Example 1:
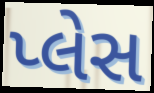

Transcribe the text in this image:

પ્લેસ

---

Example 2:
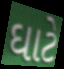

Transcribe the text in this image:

ઘાટે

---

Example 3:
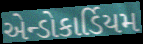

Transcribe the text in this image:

એન્ડોકાર્ડિયમ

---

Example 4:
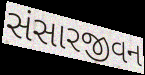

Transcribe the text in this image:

સંસારજીવન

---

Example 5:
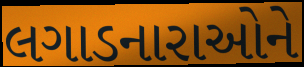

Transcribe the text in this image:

લગાડનારાઓને